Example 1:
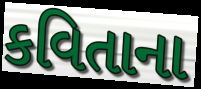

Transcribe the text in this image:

કવિતાના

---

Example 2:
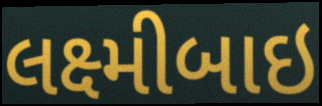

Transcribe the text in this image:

લક્ષ્મીબાઇ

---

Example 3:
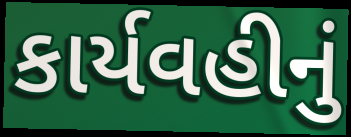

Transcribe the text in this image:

કાર્યવહીનું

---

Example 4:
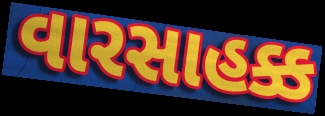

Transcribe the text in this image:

વારસાહક્ક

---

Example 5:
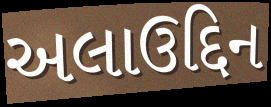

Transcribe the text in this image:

અલાઉદ્દિન